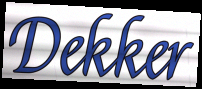
Dekker